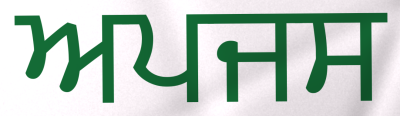
ਅਪਜਸ